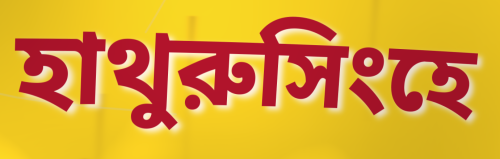
হাথুরুসিংহে